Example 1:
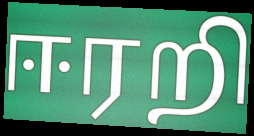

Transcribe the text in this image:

ஈரறி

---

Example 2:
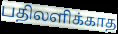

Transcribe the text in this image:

பதிலளிக்காத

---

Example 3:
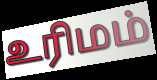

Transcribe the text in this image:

உரிமம்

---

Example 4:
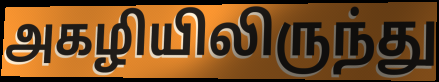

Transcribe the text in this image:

அகழியிலிருந்து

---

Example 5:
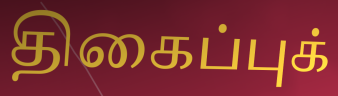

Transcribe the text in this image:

திகைப்புக்